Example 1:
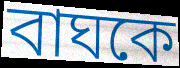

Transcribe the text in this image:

বাঘকে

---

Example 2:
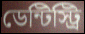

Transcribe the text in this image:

ডেন্টিস্ট্রি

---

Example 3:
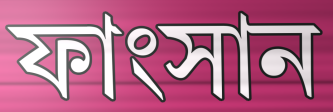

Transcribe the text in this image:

ফাংসান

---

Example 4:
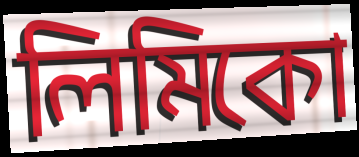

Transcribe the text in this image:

লিমিকো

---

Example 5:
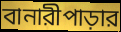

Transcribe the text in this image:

বানারীপাড়ার